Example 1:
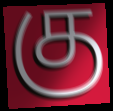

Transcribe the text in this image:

கு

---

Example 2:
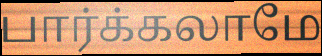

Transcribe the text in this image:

பார்க்கலாமே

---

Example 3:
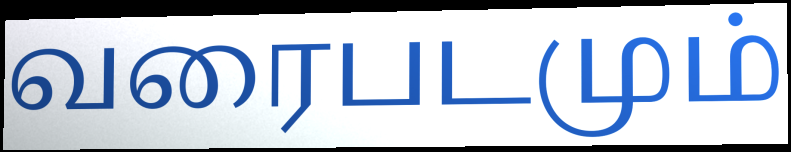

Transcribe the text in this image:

வரைபடமும்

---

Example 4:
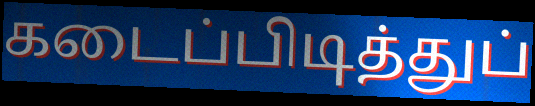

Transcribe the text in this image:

கடைப்பிடித்துப்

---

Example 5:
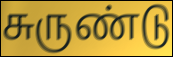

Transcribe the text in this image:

சுருண்டு